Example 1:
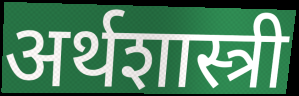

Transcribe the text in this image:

अर्थशास्त्री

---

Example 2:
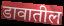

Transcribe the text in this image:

डावातील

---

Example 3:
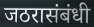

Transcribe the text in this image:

जठरासंबंधी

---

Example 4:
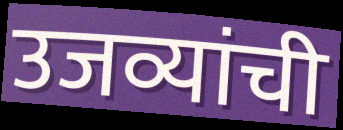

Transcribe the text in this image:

उजव्यांची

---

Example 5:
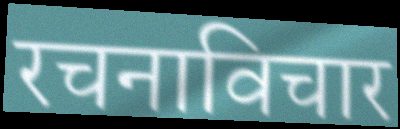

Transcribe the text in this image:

रचनाविचार